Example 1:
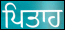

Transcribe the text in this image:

ਪਿਤਾਹ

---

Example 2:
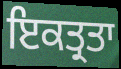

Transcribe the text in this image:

ਇਕਤ੍ਰਤਾ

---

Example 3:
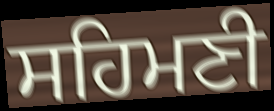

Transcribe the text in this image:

ਸਹਿਮਣੀ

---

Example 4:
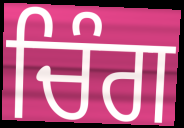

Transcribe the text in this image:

ਚਿੰਗ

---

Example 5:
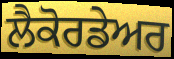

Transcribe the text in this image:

ਲੈਕੋਰਡੇਅਰ